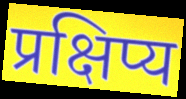
प्रक्षिप्य